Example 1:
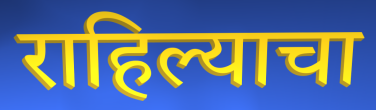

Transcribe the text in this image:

राहिल्याचा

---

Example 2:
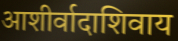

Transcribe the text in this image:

आशीर्वादाशिवाय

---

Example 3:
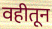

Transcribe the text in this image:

वहीतून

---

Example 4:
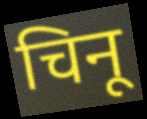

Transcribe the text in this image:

चिनू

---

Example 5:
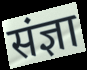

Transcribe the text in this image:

संज्ञा